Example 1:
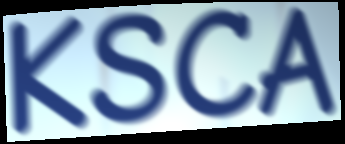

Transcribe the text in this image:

KSCA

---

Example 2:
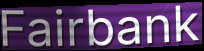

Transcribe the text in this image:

Fairbank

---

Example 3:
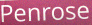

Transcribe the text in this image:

Penrose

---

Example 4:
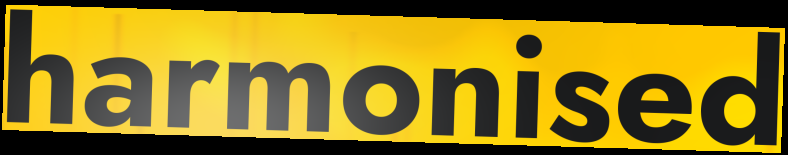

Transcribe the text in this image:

harmonised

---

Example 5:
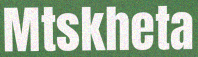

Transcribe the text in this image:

Mtskheta